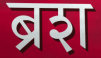
ब्रश